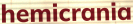
hemicrania